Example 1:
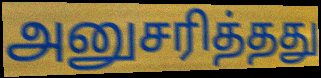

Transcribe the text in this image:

அனுசரித்தது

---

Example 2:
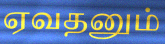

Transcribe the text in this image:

ஏவதனும்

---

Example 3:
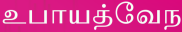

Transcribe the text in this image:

உபாயத்வேந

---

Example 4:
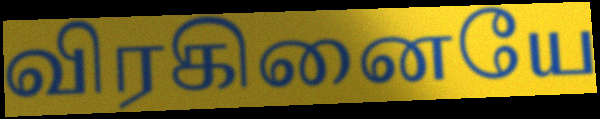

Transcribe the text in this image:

விரகினையே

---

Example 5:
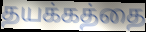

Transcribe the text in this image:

தயக்கத்தை